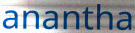
anantha